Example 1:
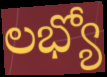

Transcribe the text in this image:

లభ్యో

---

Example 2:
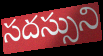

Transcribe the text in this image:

సదస్సుని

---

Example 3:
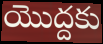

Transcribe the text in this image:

యొద్దకు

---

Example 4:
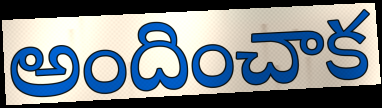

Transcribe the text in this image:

అందించాక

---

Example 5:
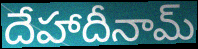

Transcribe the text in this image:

దేహాదీనామ్